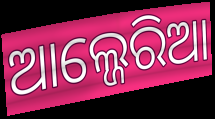
ଆଲ୍ଜେରିଆ